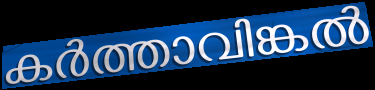
കർത്താവിങ്കൽ